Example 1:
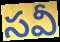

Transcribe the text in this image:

సవీ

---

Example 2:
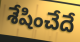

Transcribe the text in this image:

శేషించేదే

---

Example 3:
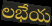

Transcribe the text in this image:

లభేయ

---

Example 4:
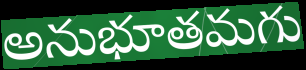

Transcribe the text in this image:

అనుభూతమగు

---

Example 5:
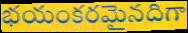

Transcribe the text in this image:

భయంకరమైనదిగా